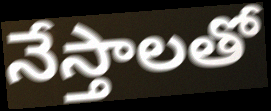
నేస్తాలతో